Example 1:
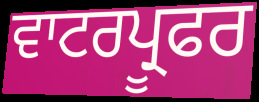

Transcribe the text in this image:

ਵਾਟਰਪ੍ਰੂਫਰ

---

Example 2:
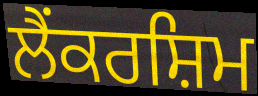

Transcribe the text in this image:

ਲੈਂਕਰਸ਼ਿਮ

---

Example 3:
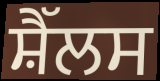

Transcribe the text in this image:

ਸ਼ੈੱਲਸ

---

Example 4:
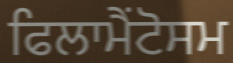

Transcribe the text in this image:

ਫਿਲਾਮੈਂਟੋਸਮ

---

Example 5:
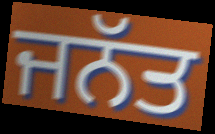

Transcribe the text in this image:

ਜਨੱਤ